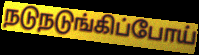
நடுநடுங்கிப்போய்